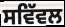
ਸਵਿੱਵਲ